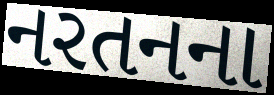
નરતનના